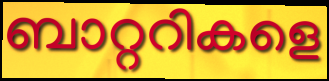
ബാറ്ററികളെ